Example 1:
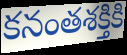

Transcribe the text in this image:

కనంతశక్తికి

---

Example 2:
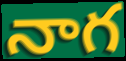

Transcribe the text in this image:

నాగ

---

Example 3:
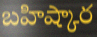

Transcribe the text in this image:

బహిష్కార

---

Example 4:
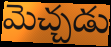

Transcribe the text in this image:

మెచ్చడు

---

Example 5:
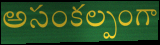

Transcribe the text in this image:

అసంకల్పంగా